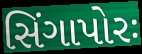
સિંગાપોરઃ